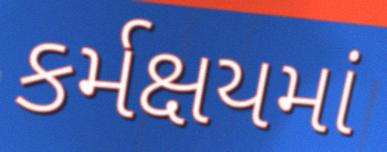
કર્મક્ષયમાં